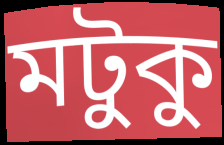
মটুকু